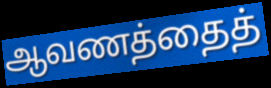
ஆவணத்தைத்